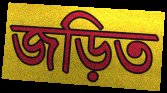
জড়িত